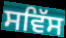
ਸਵਿੱਸ